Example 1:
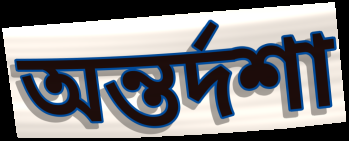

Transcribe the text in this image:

অন্তর্দশা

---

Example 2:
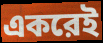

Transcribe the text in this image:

একরেই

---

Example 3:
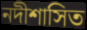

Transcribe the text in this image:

নদীশাসিত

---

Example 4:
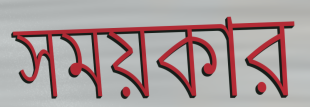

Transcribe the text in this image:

সময়কার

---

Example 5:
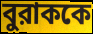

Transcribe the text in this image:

বুরাককে